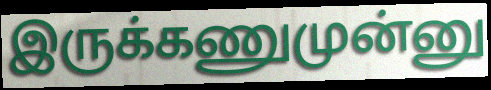
இருக்கணுமுன்னு